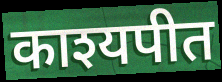
काश्यपीत